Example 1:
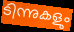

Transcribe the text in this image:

ടിന്നുകളും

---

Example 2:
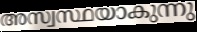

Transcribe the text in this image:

അസ്വസ്ഥയാകുന്നു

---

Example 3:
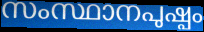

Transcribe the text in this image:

സംസ്ഥാനപുഷ്പം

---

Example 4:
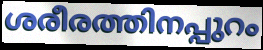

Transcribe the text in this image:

ശരീരത്തിനപ്പുറം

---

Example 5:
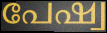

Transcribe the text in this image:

പേഷ്വ